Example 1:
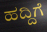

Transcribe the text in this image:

ಹದ್ದಿಗೆ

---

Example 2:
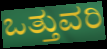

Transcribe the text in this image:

ಒತ್ತುವರಿ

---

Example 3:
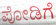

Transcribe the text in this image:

ಪೋಡಿಗೆ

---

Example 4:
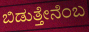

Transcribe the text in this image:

ಬಿಡುತ್ತೇನೆಂಬ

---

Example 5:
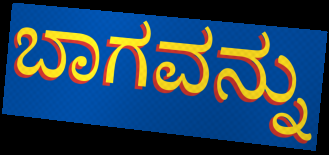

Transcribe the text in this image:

ಬಾಗವನ್ನು